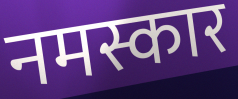
नमस्कार